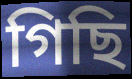
গিছি